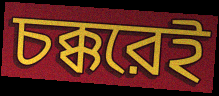
চক্করেই